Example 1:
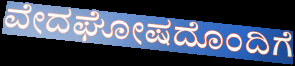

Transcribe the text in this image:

ವೇದಘೋಷದೊಂದಿಗೆ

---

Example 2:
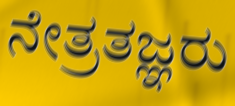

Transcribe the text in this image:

ನೇತ್ರತಜ್ಞರು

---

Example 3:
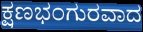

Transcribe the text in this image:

ಕ್ಷಣಭಂಗುರವಾದ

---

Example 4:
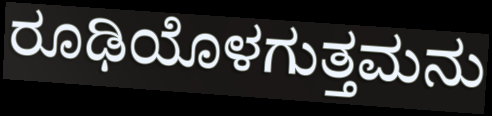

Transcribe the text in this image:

ರೂಢಿಯೊಳಗುತ್ತಮನು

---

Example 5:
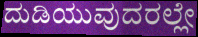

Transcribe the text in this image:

ದುಡಿಯುವುದರಲ್ಲೇ